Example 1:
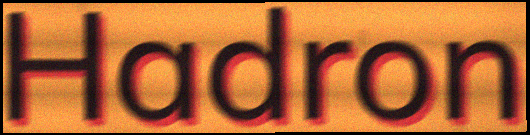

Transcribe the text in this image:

Hadron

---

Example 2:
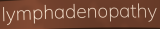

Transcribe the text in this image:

lymphadenopathy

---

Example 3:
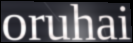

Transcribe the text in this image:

oruhai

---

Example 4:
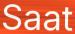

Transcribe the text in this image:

Saat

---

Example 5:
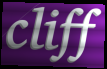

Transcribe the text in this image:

cliff